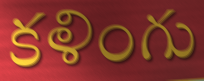
కళింగు